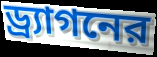
ড্র্যাগনের